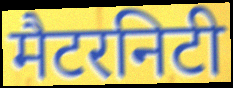
मैटरनिटी